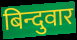
बिन्‍दुवार